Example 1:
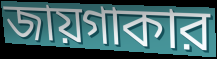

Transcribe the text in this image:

জায়গাকার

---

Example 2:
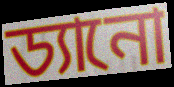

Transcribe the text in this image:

ড্যানো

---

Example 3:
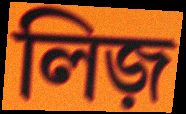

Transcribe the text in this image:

লিজ়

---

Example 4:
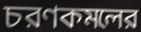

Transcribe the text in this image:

চরণকমলের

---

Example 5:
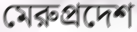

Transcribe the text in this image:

মেরুপ্রদেশ